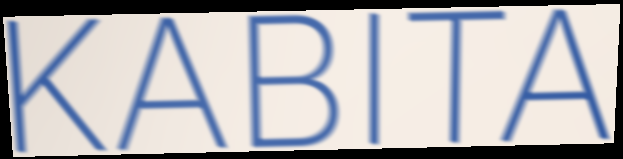
KABITA